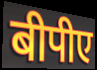
बीपीए